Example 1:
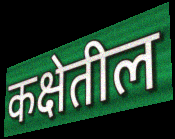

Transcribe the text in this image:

कक्षेतील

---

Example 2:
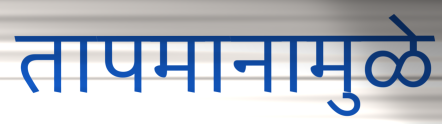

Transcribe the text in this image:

तापमानामुळे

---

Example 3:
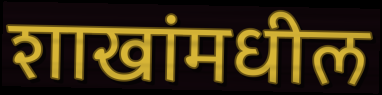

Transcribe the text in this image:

शाखांमधील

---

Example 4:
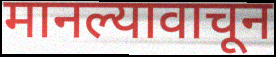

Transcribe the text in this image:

मानल्यावाचून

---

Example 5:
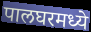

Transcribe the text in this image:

पालघरमध्ये